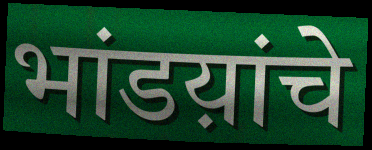
भांडय़ांचे